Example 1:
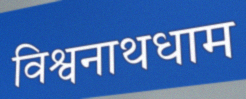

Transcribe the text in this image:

विश्वनाथधाम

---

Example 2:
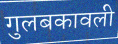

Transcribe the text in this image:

गुलबकावली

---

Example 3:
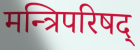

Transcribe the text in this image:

मन्त्रिपरिषद्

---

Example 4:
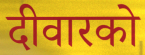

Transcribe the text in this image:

दीवारको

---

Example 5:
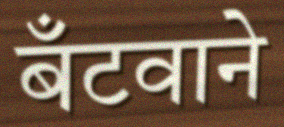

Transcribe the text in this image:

बँटवाने